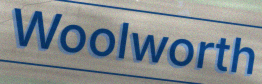
Woolworth